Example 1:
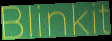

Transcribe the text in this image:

Blinkit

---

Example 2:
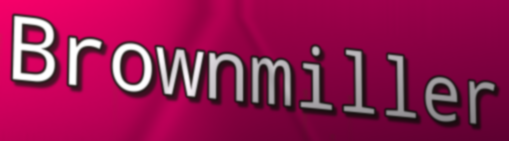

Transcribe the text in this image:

Brownmiller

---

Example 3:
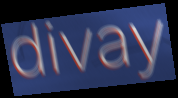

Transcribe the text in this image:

divay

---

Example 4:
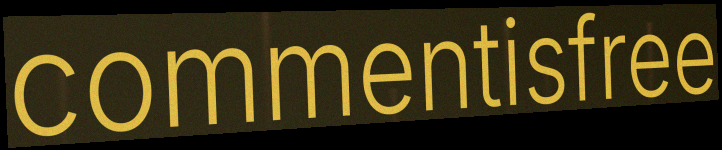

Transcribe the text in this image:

commentisfree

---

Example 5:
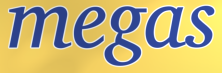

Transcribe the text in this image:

megas